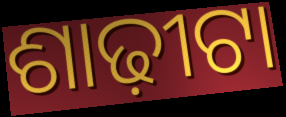
ଶାଢ଼ୀଟା